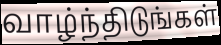
வாழ்ந்திடுங்கள்